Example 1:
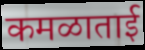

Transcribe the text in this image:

कमळाताई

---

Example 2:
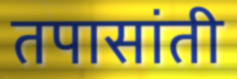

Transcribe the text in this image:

तपासांती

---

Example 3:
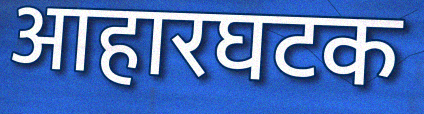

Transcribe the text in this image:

आहारघटक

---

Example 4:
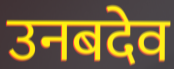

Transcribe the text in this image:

उनबदेव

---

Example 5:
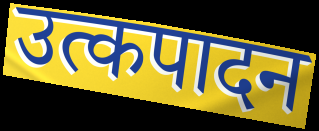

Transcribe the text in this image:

उत्कपादन